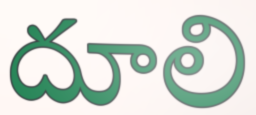
దూలి